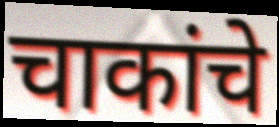
चाकांचे